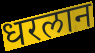
धरलान